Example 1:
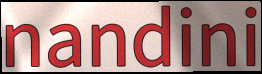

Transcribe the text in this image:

nandini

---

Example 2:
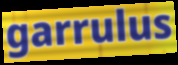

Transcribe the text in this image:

garrulus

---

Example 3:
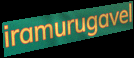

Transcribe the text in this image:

iramurugavel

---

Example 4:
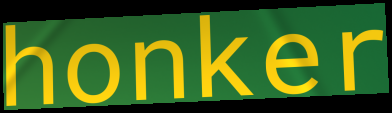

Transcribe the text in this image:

honker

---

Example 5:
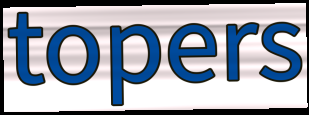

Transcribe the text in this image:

topers